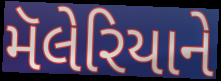
મૅલેરિયાને